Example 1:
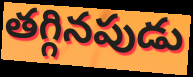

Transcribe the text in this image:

తగ్గినపుడు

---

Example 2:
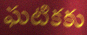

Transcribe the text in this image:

ఘటికకు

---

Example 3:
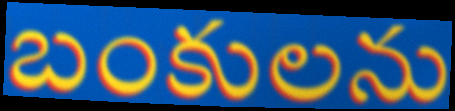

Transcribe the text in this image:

బంకులను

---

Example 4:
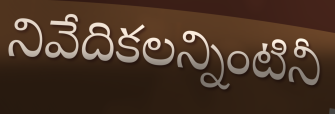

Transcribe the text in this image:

నివేదికలన్నింటినీ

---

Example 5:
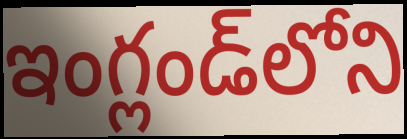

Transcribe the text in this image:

ఇంగ్లండ్‌లోని